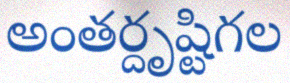
అంతర్దృష్టిగల